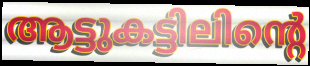
ആട്ടുകട്ടിലിന്റെ